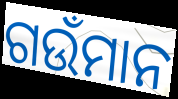
ଗଉଁମାନ